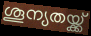
ശൂന്യതയ്ക്ക്